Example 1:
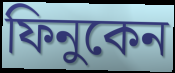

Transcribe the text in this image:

ফিনুকেন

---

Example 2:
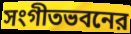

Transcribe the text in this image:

সংগীতভবনের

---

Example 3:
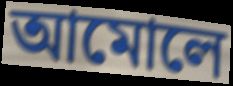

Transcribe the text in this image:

আমোলে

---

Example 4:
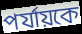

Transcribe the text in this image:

পর্যায়কে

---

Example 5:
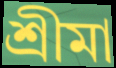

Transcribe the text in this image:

শ্রীমা